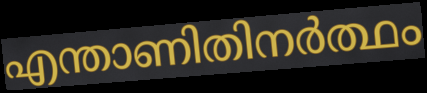
എന്താണിതിനർത്ഥം